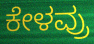
ಕೇಳವ್ರು